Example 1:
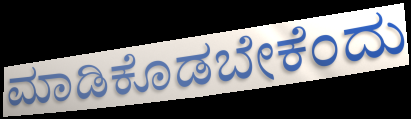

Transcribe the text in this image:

ಮಾಡಿಕೊಡಬೇಕೆಂದು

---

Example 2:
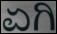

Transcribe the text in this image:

ಏಗಿ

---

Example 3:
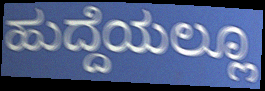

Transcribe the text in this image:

ಹುದ್ದೆಯಲ್ಲೂ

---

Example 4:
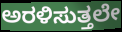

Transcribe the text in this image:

ಅರಳಿಸುತ್ತಲೇ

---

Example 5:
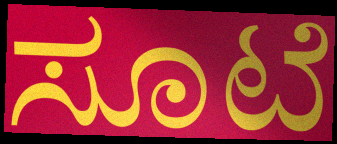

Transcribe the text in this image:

ಸೂಟೆ